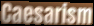
Caesarism